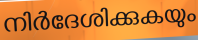
നിർദേശിക്കുകയും